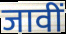
जावीं